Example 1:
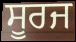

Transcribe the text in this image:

ਸੂਰਜ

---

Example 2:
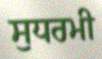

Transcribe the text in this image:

ਸੁਧਰਮੀ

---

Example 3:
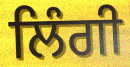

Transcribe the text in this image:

ਲਿੰਗੀ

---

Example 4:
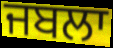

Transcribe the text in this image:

ਜਬਲਾ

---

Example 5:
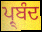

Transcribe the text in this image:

ਪ੍ਰ੍ਬੰਦ